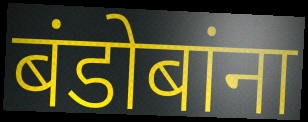
बंडोबांना